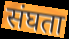
संघता